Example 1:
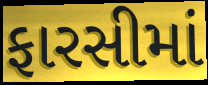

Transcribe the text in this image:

ફારસીમાં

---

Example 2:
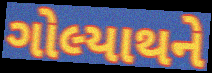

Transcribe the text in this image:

ગોલ્યાથને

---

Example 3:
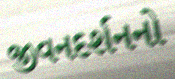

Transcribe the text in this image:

જીવનદર્શનનો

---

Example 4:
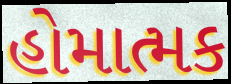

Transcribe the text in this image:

હોમાત્મક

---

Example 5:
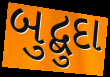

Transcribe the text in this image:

બુદ્બુદા